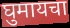
घुमायचा